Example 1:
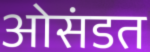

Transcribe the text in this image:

ओसंडत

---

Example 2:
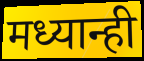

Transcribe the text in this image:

मध्यान्ही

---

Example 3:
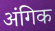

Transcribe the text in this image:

अंगिक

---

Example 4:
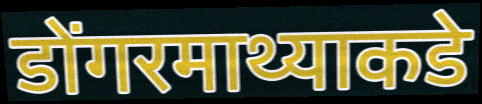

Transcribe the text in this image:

डोंगरमाथ्याकडे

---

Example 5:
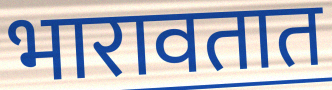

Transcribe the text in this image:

भारावतात